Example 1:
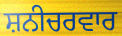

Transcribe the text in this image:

ਸ਼ਨੀਚਰਵਾਰ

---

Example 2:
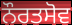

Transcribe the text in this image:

ਨੌਰਤਸੋਵ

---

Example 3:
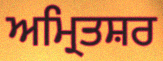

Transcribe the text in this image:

ਅਮ੍ਰਿਤਸ਼ਰ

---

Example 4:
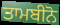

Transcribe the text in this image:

ਤਾਮਬੀਨੋ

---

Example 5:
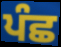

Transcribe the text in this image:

ਪੰਛ